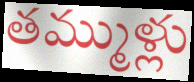
తమ్ముళ్లు